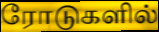
ரோடுகளில்